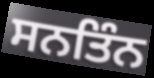
ਸਨਤਿੰਨ